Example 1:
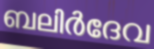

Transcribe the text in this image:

ബലിർദേവ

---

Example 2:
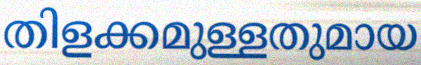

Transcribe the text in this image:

തിളക്കമുള്ളതുമായ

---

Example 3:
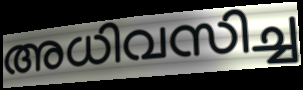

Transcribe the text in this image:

അധിവസിച്ച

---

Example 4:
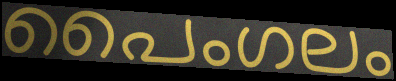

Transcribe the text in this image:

പൈംഗലം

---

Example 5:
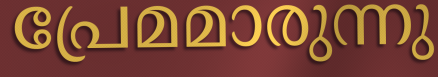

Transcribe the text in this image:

പ്രേമമാരുന്നു